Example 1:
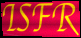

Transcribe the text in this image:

ISFR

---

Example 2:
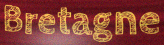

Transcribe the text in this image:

Bretagne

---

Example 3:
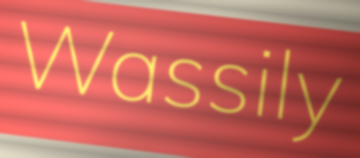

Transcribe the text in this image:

Wassily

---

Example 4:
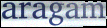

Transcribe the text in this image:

aragam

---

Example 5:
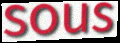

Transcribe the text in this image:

sous